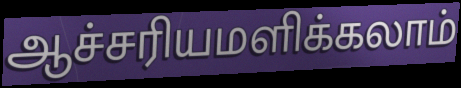
ஆச்சரியமளிக்கலாம்